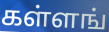
கள்ளங்